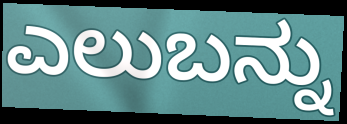
ಎಲುಬನ್ನು